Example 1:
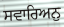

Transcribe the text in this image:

ਸਵਾਰਿਅਨੁ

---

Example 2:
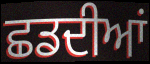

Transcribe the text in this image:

ਛਡਦੀਆਂ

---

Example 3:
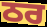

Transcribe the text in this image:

ਠਰ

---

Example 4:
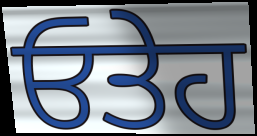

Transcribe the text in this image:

ਓਤੇਹ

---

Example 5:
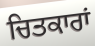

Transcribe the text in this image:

ਚਿਤਕਾਰਾਂ